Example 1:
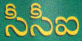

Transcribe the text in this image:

సీసీఐ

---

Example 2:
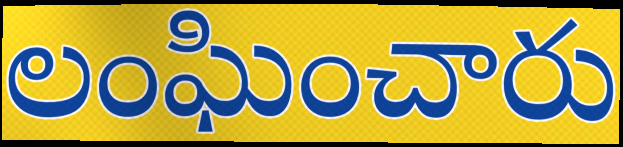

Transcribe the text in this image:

లంఘించారు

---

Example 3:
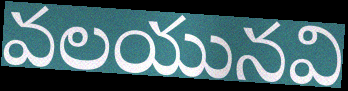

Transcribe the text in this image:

వలయునవి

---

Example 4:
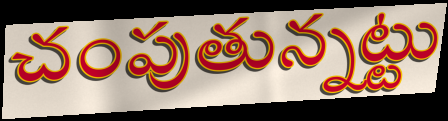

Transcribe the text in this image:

చంపుతున్నట్టు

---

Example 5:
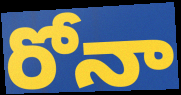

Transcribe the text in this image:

రోనా